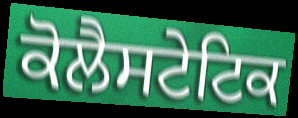
ਕੋਲੈਸਟੇਟਿਕ